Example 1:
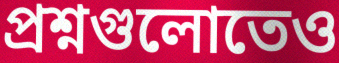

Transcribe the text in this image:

প্রশ্নগুলোতেও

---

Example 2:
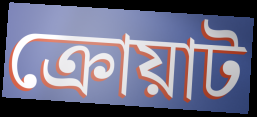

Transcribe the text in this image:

ক্রোয়াট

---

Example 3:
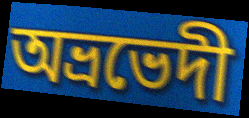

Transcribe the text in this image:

অভ্রভেদী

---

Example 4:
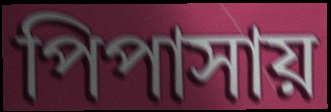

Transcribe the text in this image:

পিপাসায়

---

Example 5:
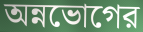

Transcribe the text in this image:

অন্নভোগের